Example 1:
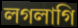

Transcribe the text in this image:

লগলাগি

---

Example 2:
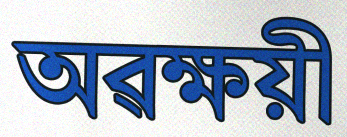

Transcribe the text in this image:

অৱক্ষয়ী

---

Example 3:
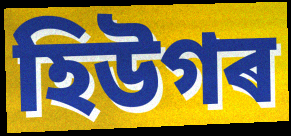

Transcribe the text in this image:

হিউগৰ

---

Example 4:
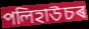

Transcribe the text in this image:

পলিহাউচৰ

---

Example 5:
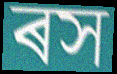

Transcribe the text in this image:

ৰস